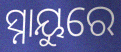
ସ୍ନାୟୁରେ